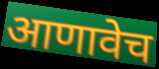
आणावेच